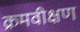
क्रमवीक्षण